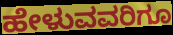
ಹೇಳುವವರಿಗೂ